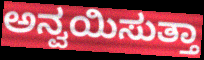
ಅನ್ವಯಿಸುತ್ತಾ